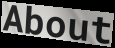
About